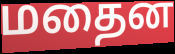
மதைன